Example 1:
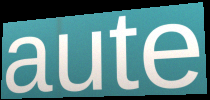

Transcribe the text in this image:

aute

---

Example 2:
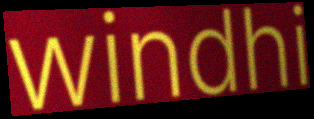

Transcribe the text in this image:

windhi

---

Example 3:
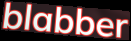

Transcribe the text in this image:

blabber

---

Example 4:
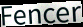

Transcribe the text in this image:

Fencer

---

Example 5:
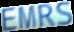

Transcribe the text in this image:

EMRS